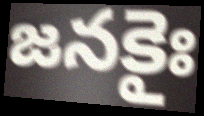
జనకైః